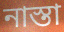
নাস্তা